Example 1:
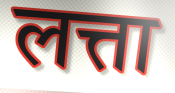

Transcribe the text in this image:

लत्ता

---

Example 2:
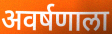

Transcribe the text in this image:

अवर्षणाला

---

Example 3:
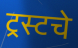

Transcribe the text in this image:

ट्रस्टचे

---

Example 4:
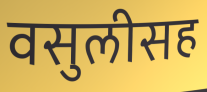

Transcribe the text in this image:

वसुलीसह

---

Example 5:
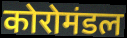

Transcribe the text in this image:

कोरोमंडल